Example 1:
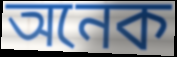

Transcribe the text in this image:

অনেক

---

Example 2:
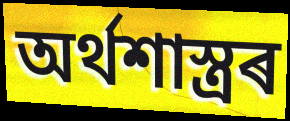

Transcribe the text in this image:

অৰ্থশাস্ত্ৰৰ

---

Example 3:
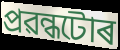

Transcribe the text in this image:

প্ৰৱন্ধটোৰ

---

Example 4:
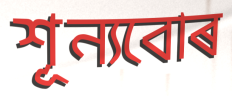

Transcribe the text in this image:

শূন্যবোৰ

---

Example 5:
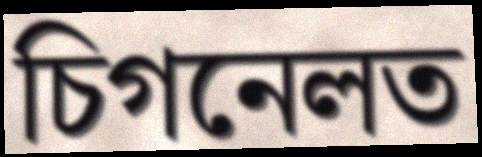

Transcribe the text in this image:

চিগনেলত